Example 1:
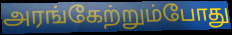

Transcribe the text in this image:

அரங்கேற்றும்போது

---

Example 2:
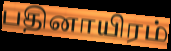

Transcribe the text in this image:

பதினாயிரம்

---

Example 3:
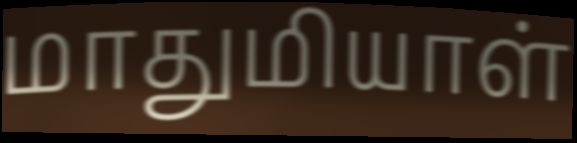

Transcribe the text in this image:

மாதுமியாள்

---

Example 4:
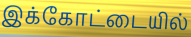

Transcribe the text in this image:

இக்கோட்டையில்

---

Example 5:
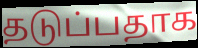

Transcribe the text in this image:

தடுப்பதாக